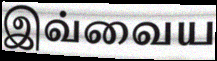
இவ்வைய